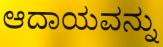
ಆದಾಯವನ್ನು